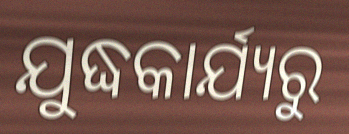
ଯୁଦ୍ଧକାର୍ଯ୍ୟରୁ